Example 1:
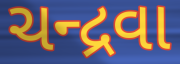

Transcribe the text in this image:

ચન્દ્રવા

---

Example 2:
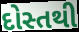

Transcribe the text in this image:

દોસ્તથી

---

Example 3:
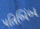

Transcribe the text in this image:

પતિબિંબ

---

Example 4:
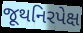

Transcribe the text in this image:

જૂથનિરપેક્ષ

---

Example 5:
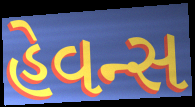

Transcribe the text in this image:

હેવન્સ